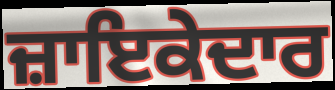
ਜ਼ਾਇਕੇਦਾਰ